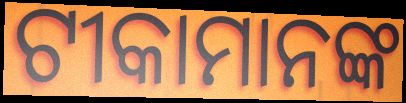
ଟୀକାମାନଙ୍କ